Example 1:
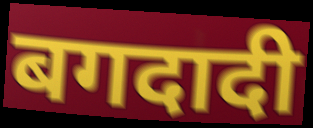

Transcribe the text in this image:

बगदादी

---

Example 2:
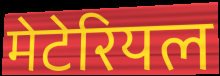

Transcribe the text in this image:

मेटेरियल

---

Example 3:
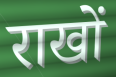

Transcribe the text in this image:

राखों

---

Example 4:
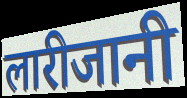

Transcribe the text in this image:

लारीजानी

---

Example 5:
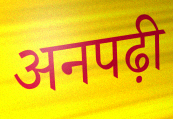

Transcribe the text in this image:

अनपढ़ी